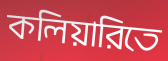
কলিয়ারিতে